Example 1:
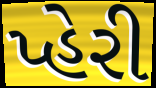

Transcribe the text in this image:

પ્હેરી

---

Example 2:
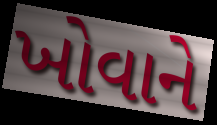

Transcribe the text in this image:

ખોવાને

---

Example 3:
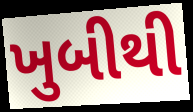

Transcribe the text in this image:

ખુબીથી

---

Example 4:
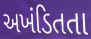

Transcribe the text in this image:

અખંડિતતા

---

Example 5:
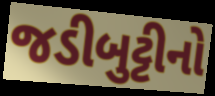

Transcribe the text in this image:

જડીબુટ્ટીનો